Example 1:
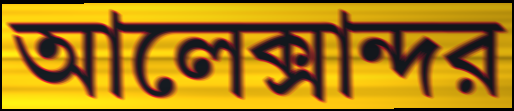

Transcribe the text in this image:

আলেক্সান্দর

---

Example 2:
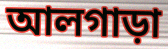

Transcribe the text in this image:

আলগাড়া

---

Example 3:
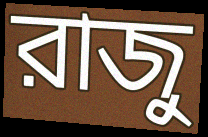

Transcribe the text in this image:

রাজু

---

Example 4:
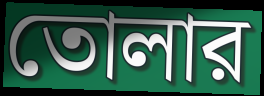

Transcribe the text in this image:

তোলার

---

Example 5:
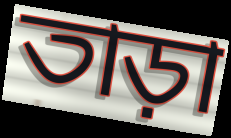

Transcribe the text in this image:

তাড়া